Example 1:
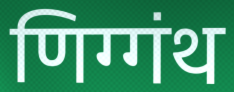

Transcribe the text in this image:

णिग्गंथ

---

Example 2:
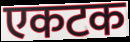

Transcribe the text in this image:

एकटक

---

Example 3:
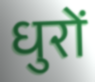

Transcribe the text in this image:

धुरों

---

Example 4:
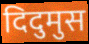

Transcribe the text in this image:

दिदुमुस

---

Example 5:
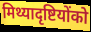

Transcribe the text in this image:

मिथ्यादृष्टियोंको